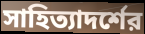
সাহিত্যাদর্শের